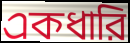
একধারি